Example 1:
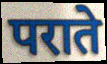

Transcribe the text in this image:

पराते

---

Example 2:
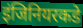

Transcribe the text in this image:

इंजिनियरकडे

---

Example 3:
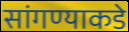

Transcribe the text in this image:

सांगण्याकडे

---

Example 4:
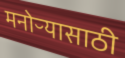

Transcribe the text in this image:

मनोऱ्यासाठी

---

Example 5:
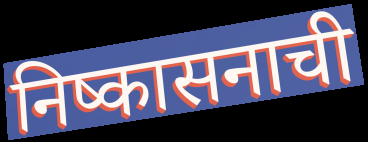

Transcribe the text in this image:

निष्कासनाची